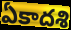
ఏకాదశి